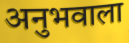
अनुभवाला